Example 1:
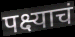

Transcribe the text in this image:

पक्ष्याचं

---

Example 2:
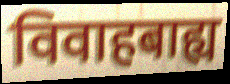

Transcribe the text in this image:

विवाहबाह्य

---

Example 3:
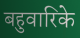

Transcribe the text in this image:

बहुवारिके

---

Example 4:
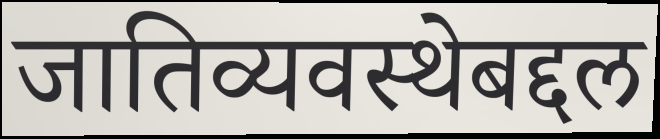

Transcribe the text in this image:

जातिव्यवस्थेबद्दल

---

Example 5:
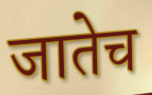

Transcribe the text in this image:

जातेच